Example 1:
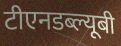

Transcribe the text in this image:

टीएनडब्ल्यूबी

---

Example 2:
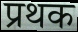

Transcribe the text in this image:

प्रथक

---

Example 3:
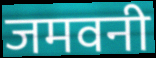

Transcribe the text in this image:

जमवनी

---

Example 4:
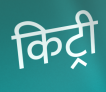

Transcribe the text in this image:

किट्री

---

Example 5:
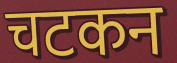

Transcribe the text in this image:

चटकन